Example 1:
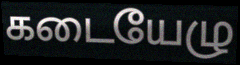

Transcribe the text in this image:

கடையேழு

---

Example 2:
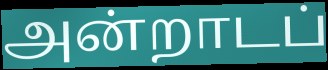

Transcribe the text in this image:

அன்றாடப்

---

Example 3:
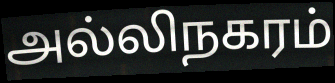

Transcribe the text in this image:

அல்லிநகரம்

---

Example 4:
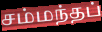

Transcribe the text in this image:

சம்மந்தப்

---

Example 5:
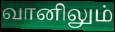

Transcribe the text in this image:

வானிலும்